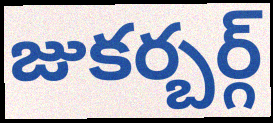
జుకర్బర్గ్